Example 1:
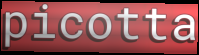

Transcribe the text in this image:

picotta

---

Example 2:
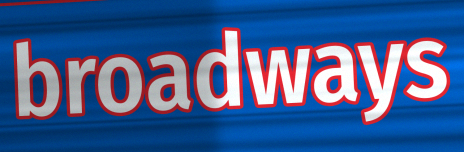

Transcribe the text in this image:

broadways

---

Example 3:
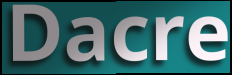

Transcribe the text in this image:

Dacre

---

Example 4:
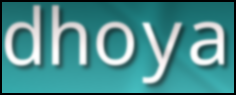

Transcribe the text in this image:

dhoya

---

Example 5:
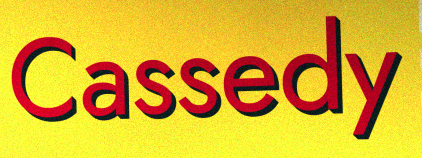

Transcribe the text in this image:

Cassedy